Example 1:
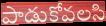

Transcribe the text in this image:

పాడుకోవలసి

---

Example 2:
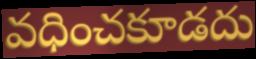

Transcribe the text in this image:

వధించకూడదు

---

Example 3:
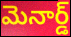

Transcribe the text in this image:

మెనార్డ్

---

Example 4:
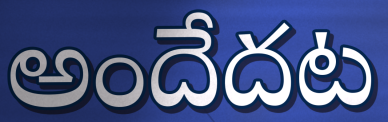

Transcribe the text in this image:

అందేదట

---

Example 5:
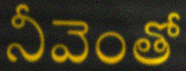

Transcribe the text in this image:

నీవెంతో